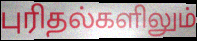
புரிதல்களிலும்